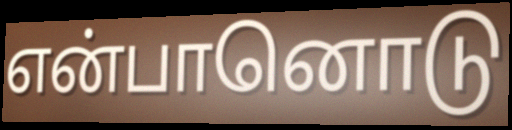
என்பானொடு